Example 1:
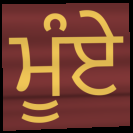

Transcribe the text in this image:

ਮੂੰਏ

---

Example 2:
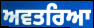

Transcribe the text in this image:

ਅਵਤਰਿਆ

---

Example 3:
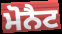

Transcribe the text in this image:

ਮੋਨੈਟ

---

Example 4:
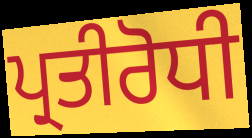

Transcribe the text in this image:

ਪ੍ਰਤੀਰੋਧੀ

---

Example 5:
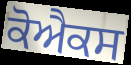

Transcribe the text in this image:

ਕੋਐਕਸ